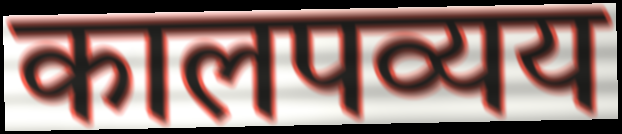
कालपव्यय